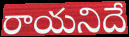
రాయనిదే